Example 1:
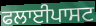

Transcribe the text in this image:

ਫਲਾਈਪਾਸਟ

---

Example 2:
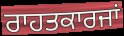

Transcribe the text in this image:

ਰਾਹਤਕਾਰਜਾਂ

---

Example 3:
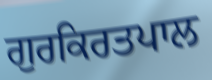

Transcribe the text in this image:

ਗੁਰਕਿਰਤਪਾਲ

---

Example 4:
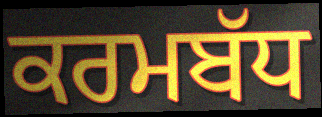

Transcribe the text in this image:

ਕਰਮਬੱਧ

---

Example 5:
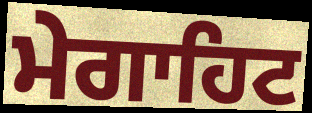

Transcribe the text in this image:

ਮੇਗਾਹਿਟ